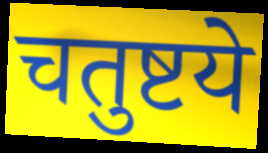
चतुष्टये